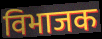
विभाजक